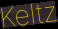
Keltz